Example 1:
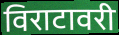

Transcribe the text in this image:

विराटावरी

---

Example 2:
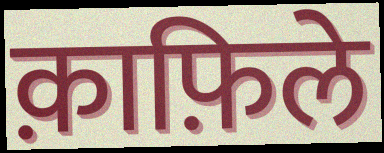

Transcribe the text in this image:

क़ाफ़िले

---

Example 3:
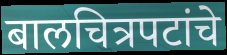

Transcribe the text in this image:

बालचित्रपटांचे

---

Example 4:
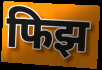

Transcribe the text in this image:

फिझ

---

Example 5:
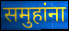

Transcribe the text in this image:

समुहांना